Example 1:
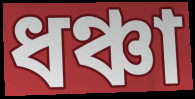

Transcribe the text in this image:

ধঞ্চা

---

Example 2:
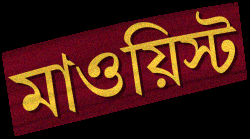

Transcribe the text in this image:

মাওয়িস্ট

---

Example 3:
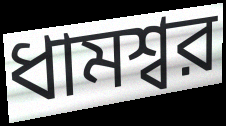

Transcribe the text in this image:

ধামশ্বর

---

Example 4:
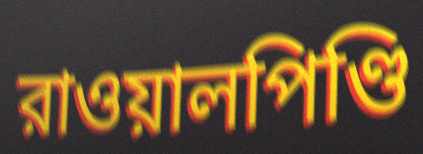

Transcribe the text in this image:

রাওয়ালপিণ্ডি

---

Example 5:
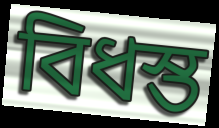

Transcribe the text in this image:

বিধস্ত